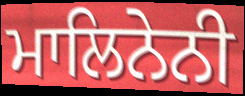
ਮਾਲਿਨੇਨੀ